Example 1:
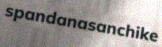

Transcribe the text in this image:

spandanasanchike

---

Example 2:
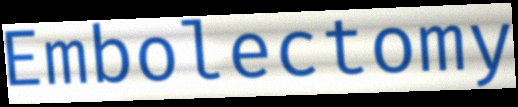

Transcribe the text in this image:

Embolectomy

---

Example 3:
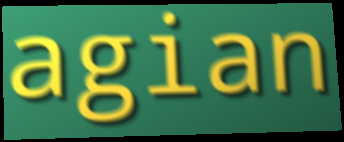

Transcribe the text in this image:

agian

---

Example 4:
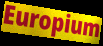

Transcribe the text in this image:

Europium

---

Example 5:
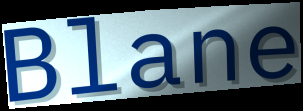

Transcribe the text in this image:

Blane